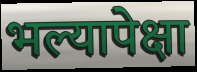
भल्यापेक्षा